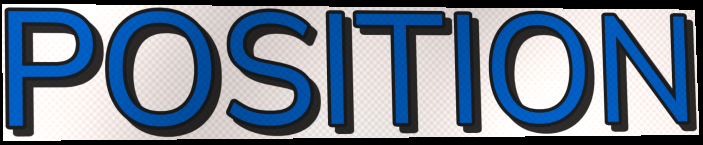
POSITION